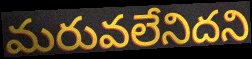
మరువలేనిదని